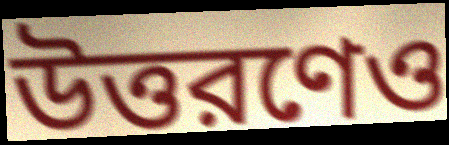
উত্তরণেও